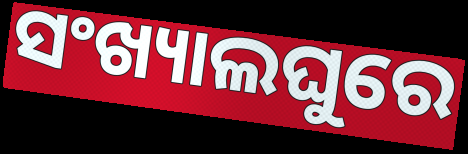
ସଂଖ୍ୟାଲଘୁରେ